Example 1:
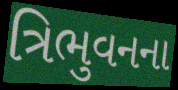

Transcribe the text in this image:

ત્રિભુવનના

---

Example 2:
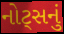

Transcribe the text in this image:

નોટ્સનું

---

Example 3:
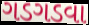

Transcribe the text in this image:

ગડગડવા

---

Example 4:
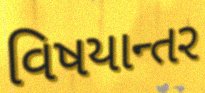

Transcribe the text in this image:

વિષયાન્તર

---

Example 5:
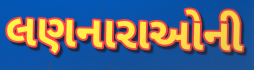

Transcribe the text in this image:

લણનારાઓની